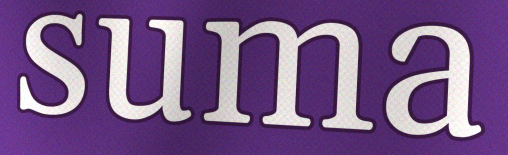
suma